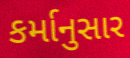
કર્માનુસાર